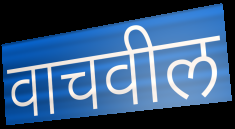
वाचवील